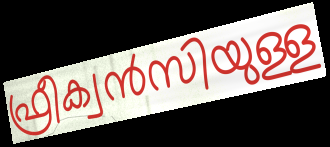
ഫ്രീക്വൻസിയുള്ള